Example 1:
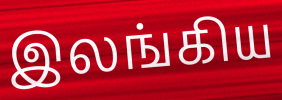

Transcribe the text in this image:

இலங்கிய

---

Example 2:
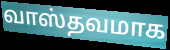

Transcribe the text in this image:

வாஸ்தவமாக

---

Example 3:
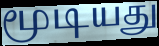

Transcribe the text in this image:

மூடியது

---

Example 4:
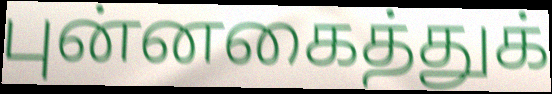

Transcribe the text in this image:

புன்னகைத்துக்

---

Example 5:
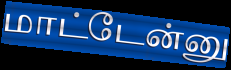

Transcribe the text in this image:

மாட்டேன்னு